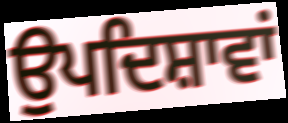
ਉਪਦਿਸ਼ਾਵਾਂ